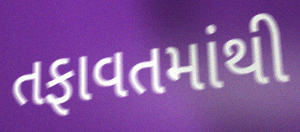
તફાવતમાંથી